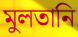
মুলতানি